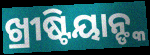
ଖ୍ରୀଷ୍ଟିୟାନ୍ଙ୍କ